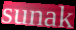
sunak